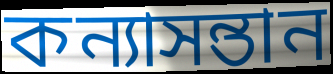
কন্যাসন্তান